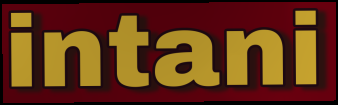
intani